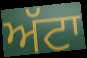
ਅੱਟਾ